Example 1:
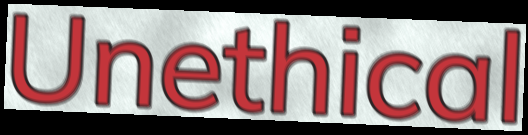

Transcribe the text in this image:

Unethical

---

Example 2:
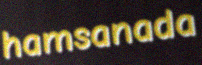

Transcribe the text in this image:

hamsanada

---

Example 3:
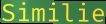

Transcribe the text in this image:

Similie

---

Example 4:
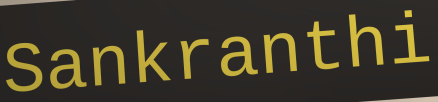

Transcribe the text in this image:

Sankranthi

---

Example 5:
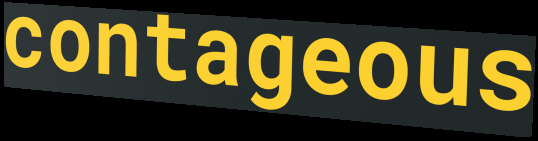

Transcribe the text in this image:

contageous